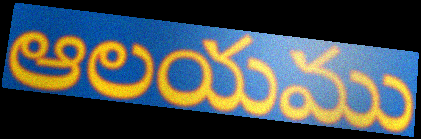
ఆలయము